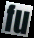
fu